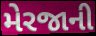
મેરજાની